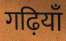
गढ़ियाँ